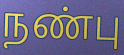
நண்பு